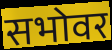
सभोवर